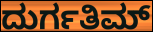
ದುರ್ಗತಿಮ್